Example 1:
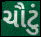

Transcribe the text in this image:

ચૌટું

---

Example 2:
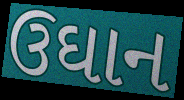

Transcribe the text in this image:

ઉઘાન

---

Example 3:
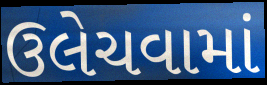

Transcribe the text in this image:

ઉલેચવામાં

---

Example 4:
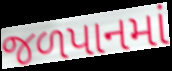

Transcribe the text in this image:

જળપાનમાં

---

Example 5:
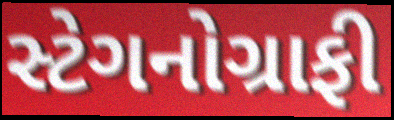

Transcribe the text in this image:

સ્ટેગનોગ્રાફી